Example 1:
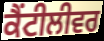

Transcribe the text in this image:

ਕੈਂਟੀਲੀਵਰ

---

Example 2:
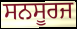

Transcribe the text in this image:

ਸਨਸੂਰਜ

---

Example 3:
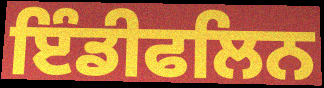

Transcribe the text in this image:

ਇੰਡੀਫਲਿਨ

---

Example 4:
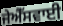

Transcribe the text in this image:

ਜੇਐੱਸਵਾਈ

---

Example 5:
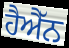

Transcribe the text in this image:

ਹੈਐੱਨ